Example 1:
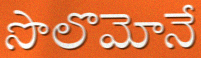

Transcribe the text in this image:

సొలొమోనే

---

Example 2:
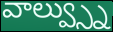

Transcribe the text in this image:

వాల్వ్స్ను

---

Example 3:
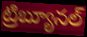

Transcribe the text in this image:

ట్రిబ్యూనల్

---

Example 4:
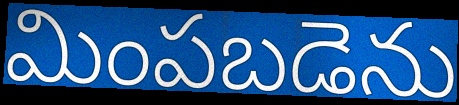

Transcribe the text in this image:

మింపబడెను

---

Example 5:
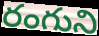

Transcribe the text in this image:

రంగుని